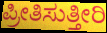
ಪ್ರೀತಿಸುತ್ತೀರಿ